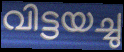
വിട്ടയച്ചു